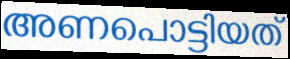
അണപൊട്ടിയത്